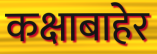
कक्षाबाहेर